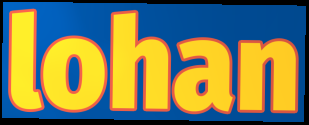
lohan